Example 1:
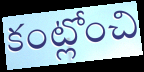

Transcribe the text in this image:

కంట్లోంచి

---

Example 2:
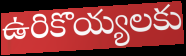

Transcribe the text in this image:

ఉరికొయ్యలకు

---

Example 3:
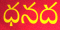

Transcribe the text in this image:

ధనద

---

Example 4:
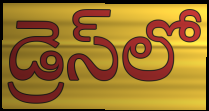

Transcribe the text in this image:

డ్రెస్‌లో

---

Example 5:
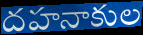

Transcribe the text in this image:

దహనాకుల